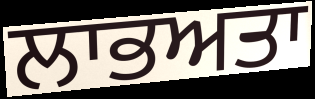
ਲਾਭਅਤਾ